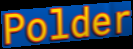
Polder